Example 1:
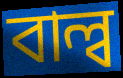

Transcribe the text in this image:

বাল্ব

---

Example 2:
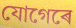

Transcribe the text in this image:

যোগেৰে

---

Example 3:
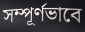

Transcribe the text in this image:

সম্পূৰ্ণভাবে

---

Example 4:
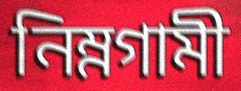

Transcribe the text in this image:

নিম্নগামী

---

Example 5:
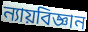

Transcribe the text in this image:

ন্যায়বিজ্ঞান